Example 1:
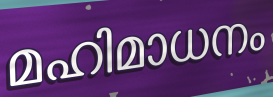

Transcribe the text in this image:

മഹിമാധനം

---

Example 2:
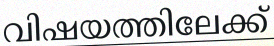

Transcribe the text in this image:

വിഷയത്തിലേക്ക്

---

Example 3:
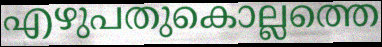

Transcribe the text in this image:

എഴുപതുകൊല്ലത്തെ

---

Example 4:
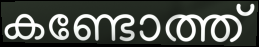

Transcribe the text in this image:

കണ്ടോത്ത്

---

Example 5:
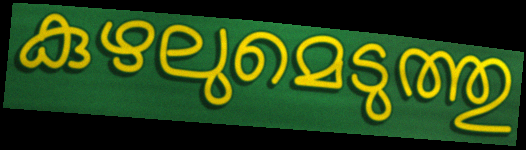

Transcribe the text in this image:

കുഴലുമെടുത്തു